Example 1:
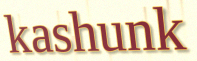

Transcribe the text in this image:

kashunk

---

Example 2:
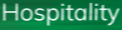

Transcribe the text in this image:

Hospitality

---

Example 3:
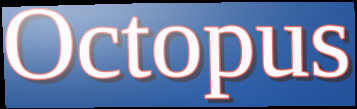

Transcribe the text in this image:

Octopus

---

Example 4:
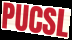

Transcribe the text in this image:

PUCSL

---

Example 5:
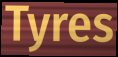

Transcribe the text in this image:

Tyres